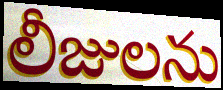
లీజులను